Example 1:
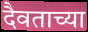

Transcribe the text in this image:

दैवताच्या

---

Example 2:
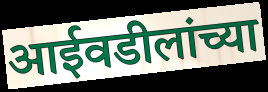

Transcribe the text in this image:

आईवडीलांच्या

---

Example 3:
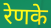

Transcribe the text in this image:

रेणके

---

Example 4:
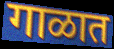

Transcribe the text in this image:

गाळात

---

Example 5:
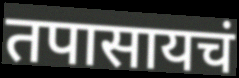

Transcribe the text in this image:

तपासायचं